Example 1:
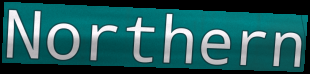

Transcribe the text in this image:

Northern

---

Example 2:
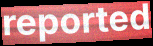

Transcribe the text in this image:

reported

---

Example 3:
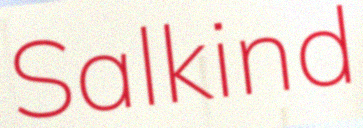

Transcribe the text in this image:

Salkind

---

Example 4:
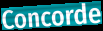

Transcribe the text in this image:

Concorde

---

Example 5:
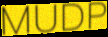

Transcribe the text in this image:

MUDP